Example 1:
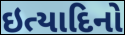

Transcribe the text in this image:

ઇત્યાદિનો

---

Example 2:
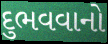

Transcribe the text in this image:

દુભવવાનો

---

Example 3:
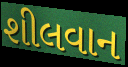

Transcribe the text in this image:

શીલવાન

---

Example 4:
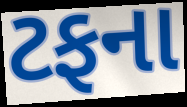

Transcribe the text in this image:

ટફના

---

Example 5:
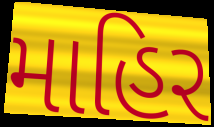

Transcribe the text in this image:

માહિર